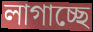
লাগাচ্ছে